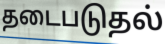
தடைபடுதல்